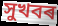
সুখবৰ